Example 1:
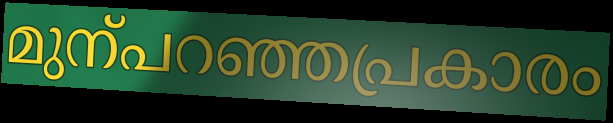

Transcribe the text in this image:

മുന്പറഞ്ഞപ്രകാരം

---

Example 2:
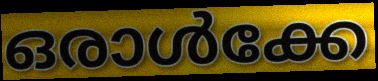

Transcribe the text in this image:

ഒരാൾക്കേ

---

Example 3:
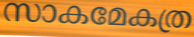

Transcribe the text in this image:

സാകമേകത്ര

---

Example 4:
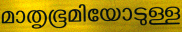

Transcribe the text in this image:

മാതൃഭൂമിയോടുള്ള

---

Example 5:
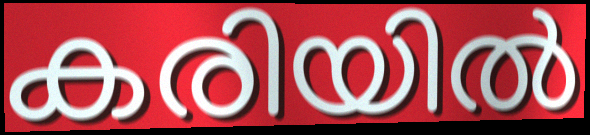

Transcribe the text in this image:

കരിയിൽ